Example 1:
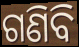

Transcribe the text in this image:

ଗଣିବି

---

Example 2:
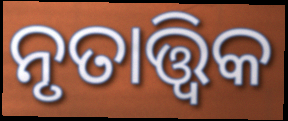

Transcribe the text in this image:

ନୃତାତ୍ତ୍ବିକ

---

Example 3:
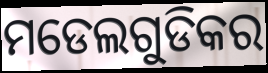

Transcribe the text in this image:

ମଡେଲଗୁଡିକର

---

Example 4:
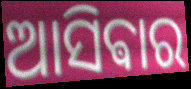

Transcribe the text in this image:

ଆସିଵାର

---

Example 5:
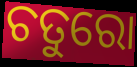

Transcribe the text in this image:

ଚତୁରୋ